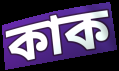
কাক